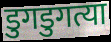
डुगडुगत्या